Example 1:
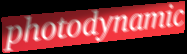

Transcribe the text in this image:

photodynamic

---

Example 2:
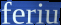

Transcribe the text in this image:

feriu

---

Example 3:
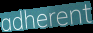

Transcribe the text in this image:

adherent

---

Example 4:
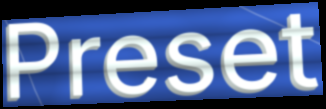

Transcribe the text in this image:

Preset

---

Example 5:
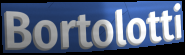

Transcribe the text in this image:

Bortolotti